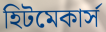
হিটমেকার্স